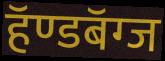
हॅण्डबॅग्ज